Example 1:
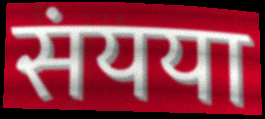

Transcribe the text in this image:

संयया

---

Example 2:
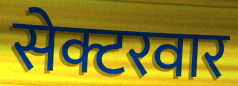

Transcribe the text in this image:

सेक्टरवार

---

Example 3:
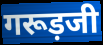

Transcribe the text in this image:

गरूड़जी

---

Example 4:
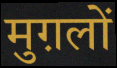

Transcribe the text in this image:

मुग़लों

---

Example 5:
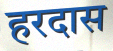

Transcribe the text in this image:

हरदास